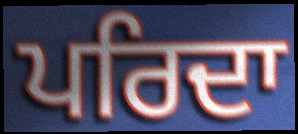
ਪਰਿਦਾ